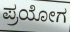
ಪ್ರಯೋಗ